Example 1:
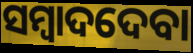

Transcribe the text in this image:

ସମ୍ବାଦଦେବା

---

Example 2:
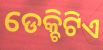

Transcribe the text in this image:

ଡେକ୍ଚିଟିଏ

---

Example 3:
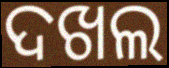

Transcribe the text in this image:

ଦଖଲ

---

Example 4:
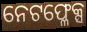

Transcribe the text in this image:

ନେଟଫ୍ଳେକ୍ସ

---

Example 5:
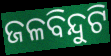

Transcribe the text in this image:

ଜଳବିନ୍ଦୁଟି